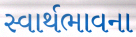
સ્વાર્થભાવના